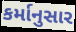
કર્માનુસાર